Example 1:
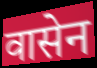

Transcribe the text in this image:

वासेन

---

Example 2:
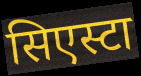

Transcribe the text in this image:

सिएस्टा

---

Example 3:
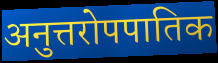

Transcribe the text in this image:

अनुत्तरोपपातिक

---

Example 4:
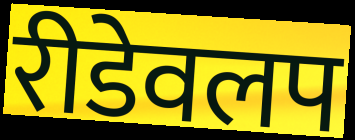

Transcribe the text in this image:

रीडेवलप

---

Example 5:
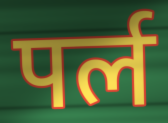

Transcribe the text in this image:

पर्ल